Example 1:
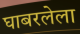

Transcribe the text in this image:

घाबरलेला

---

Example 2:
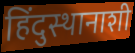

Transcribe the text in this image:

हिंदुस्थानाशी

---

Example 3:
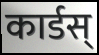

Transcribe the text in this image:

कार्डस्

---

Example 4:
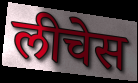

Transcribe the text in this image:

लीचेस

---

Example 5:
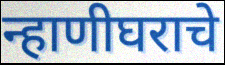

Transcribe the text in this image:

न्हाणीघराचे